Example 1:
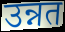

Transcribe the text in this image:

उन्नत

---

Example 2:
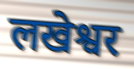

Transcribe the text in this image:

लखेश्वर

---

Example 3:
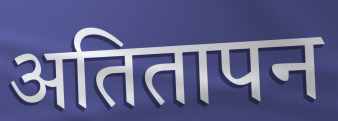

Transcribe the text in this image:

अतितापन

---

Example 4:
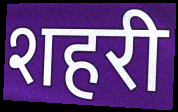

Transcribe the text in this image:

शहरी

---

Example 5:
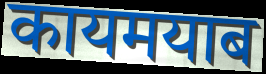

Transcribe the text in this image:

कायमयाब